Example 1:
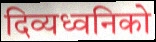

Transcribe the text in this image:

दिव्यध्वनिको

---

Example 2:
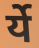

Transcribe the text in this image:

र्ये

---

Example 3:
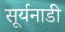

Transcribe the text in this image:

सूर्यनाडी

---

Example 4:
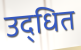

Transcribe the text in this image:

उद्धित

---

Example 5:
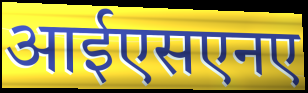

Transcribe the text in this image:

आईएसएनए